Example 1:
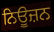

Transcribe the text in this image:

ਨਿਊਜ਼ਨ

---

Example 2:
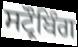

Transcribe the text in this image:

ਸਟ੍ਰੌਬਿੰਗ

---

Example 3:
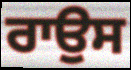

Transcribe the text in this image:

ਰਾਉਸ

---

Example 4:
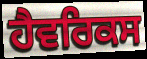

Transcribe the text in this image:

ਹੈਵਰਿਕਸ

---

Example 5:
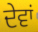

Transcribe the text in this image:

ਦੇਵਾਂ